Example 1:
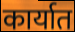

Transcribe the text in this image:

कार्यात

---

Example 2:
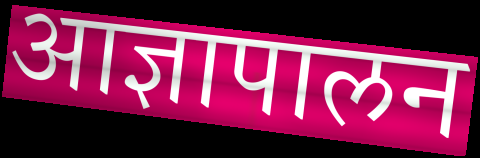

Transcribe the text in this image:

आज्ञापालन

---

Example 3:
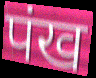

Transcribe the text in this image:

पंख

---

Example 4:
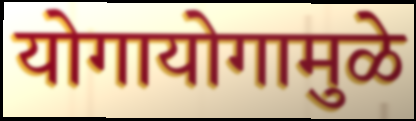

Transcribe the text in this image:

योगायोगामुळे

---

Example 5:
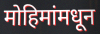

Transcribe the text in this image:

मोहिमांमधून